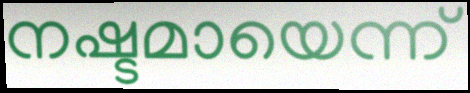
നഷ്ടമായെന്ന്